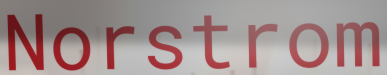
Norstrom